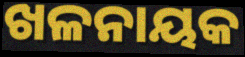
ଖଳନାୟକ